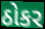
ઠોકર